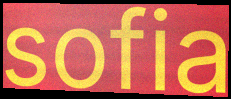
sofia